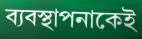
ব্যবস্থাপনাকেই